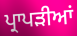
ਪ੍ਰਾਪੜੀਆਂ